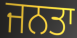
ਜਨਤਾ